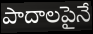
పాదాలపైనే